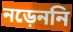
নড়েননি